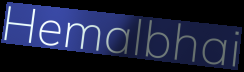
Hemalbhai